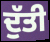
ਦੁੱਤੀ